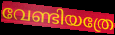
വേണ്ടിയത്രേ